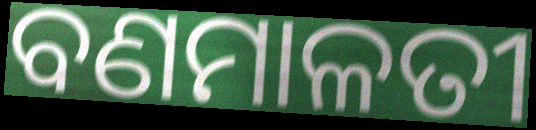
ବଣମାଳତୀ